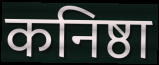
कनिष्ठा